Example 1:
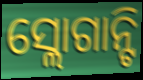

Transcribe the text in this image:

ସ୍ଲୋଗାନ୍ଟି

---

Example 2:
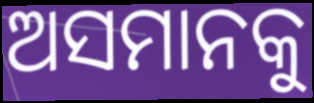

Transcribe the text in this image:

ଅସମାନକୁ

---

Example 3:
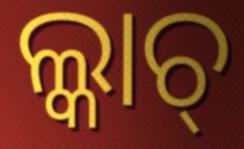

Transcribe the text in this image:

ଲ୍କାଚ୍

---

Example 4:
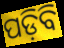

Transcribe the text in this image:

ପଡ଼ିବି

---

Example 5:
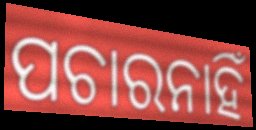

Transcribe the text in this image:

ପଚାରନାହିଁ